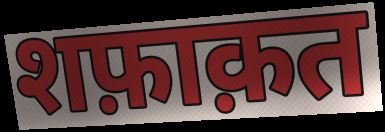
शफ़ाक़त